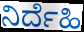
ನಿರ್ದೆಹಿ